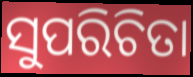
ସୁପରିଚିତା